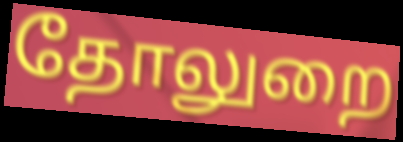
தோலுறை